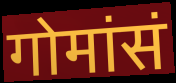
गोमांसं